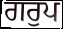
ਗਰੁਪ